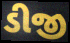
ડીજી